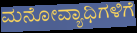
ಮನೋವ್ಯಾಧಿಗಳಿಗೆ